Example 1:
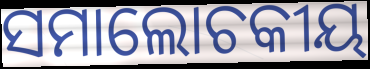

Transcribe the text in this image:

ସମାଲୋଚକୀୟ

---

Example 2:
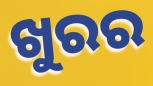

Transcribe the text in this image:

ଖୁରର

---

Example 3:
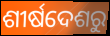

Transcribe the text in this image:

ଶୀର୍ଷଦେଶରୁ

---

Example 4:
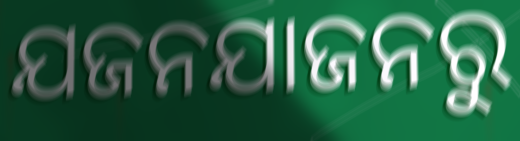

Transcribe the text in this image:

ଯଜନଯାଜନରୁ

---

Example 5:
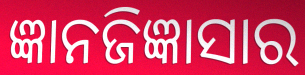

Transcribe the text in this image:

ଜ୍ଞାନଜିଜ୍ଞାସାର